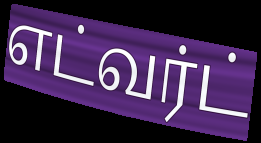
எட்வர்ட்